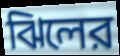
ঝিলের